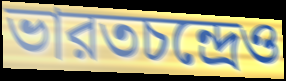
ভারতচন্দ্রেও